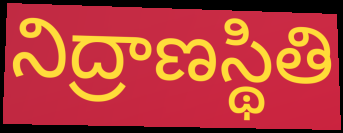
నిద్రాణస్థితి